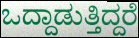
ಒದ್ದಾಡುತ್ತಿದ್ದರೆ